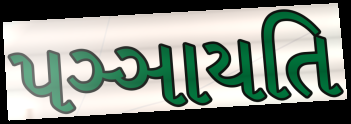
પઞ્ઞાયતિ